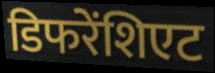
डिफरेंशिएट